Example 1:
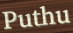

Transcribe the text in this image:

Puthu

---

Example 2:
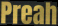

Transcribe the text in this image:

Preah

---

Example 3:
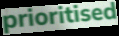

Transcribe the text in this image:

prioritised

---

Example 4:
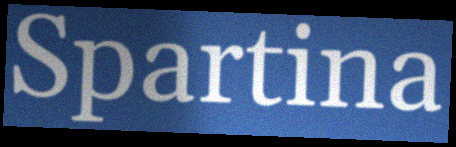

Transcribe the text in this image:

Spartina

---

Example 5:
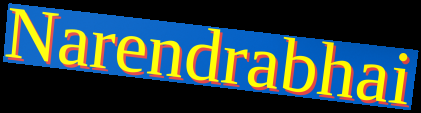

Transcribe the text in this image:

Narendrabhai